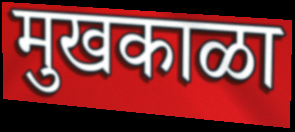
मुखकाळा